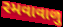
રમવાવાળુ